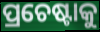
ପ୍ରଚେଷ୍ଟାକୁ